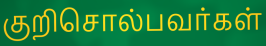
குறிசொல்பவர்கள்